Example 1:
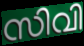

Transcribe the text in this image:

സിവി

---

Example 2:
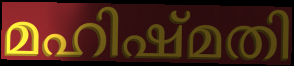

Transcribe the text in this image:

മഹിഷ്മതി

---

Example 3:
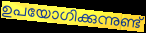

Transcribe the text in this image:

ഉപയോഗിക്കുന്നുണ്ട്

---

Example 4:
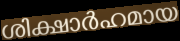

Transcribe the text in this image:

ശിക്ഷാർഹമായ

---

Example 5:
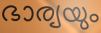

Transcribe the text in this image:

ഭാര്യയും